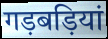
गड़बड़ियां